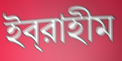
ইব্‌রাহীম